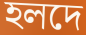
হলদে